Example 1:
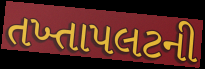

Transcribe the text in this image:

તખ્તાપલટની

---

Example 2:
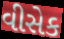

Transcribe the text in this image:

વીસેક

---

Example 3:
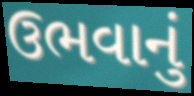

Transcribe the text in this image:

ઉભવાનું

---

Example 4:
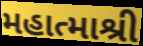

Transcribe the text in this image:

મહાત્માશ્રી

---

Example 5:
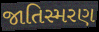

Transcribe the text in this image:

જાતિસ્મરણ